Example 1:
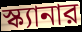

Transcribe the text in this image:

স্ক্যানার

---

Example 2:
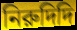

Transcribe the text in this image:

নিরুদিদি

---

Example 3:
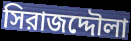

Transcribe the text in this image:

সিরাজদ্দৌলা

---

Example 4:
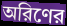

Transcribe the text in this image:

অরিণের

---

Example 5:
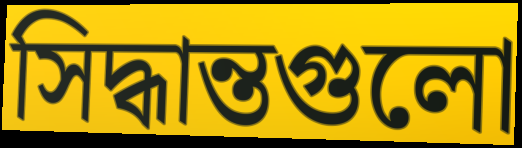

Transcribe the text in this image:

সিদ্ধান্তগুলো